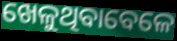
ଖେଳୁଥିବାବେଳେ